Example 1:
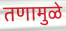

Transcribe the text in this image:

तणामुळे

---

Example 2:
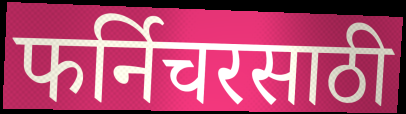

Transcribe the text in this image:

फर्निचरसाठी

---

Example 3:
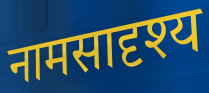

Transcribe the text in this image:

नामसादृश्य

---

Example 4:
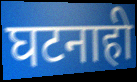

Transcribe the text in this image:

घटनाही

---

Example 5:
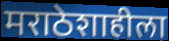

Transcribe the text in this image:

मराठेशाहीला